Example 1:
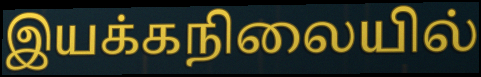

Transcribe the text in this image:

இயக்கநிலையில்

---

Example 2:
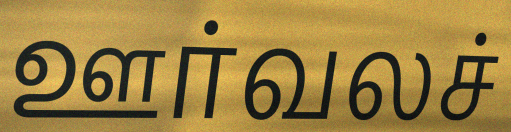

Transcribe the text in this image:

ஊர்வலச்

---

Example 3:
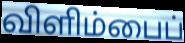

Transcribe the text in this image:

விளிம்பைப்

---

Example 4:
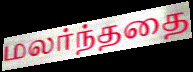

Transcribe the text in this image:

மலர்ந்ததை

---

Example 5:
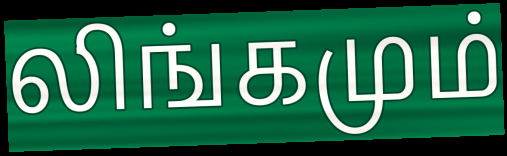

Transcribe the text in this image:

லிங்கமும்